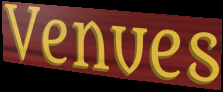
Venues